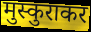
मुस्कुराकर